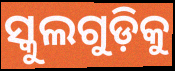
ସ୍କୁଲଗୁଡ଼ିକୁ